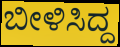
ಬೀಳಿಸಿದ್ದ